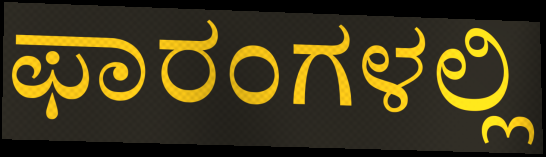
ಫಾರಂಗಳಲ್ಲಿ